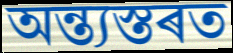
অন্ত্যস্তৰত